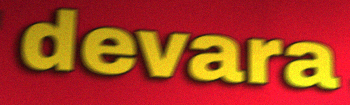
devara